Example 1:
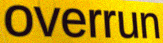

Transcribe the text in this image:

overrun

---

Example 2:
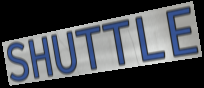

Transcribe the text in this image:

SHUTTLE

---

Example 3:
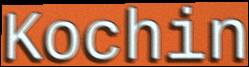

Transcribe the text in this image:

Kochin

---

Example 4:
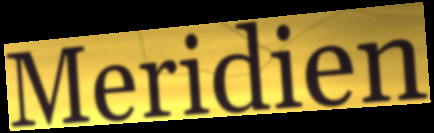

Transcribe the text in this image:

Meridien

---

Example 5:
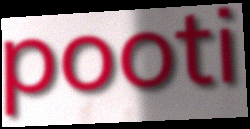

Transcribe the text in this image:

pooti